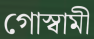
গোস্বামী